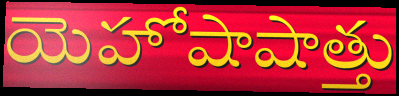
యెహోషాషాత్తు